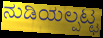
ನುಡಿಯಲ್ಪಟ್ಟ